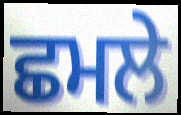
ਛਮਲੇ